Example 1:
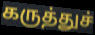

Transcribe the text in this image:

கருத்துச்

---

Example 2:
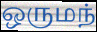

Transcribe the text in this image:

ஒருமந்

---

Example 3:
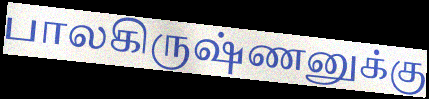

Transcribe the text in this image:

பாலகிருஷ்ணனுக்கு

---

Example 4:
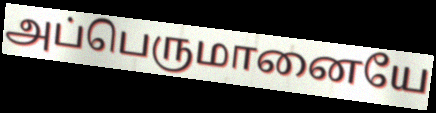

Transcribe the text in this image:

அப்பெருமானையே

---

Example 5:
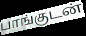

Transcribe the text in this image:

பாங்குடன்